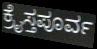
ಕ್ರೈಸ್ತಪೂರ್ವ